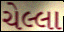
ચેલ્લા